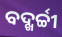
ବଦ୍ଖର୍ଚ୍ଚୀ